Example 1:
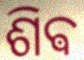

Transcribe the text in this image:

ଶିଵ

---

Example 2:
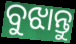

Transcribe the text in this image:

ବୁଝାନ୍ତୁ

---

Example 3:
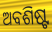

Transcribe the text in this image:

ଅବଶିଷ୍ଟ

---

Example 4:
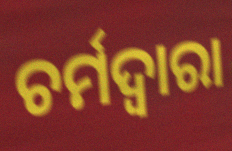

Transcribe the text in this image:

ଚର୍ମଦ୍ଵାରା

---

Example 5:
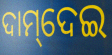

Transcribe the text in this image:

ଦାମ୍‌ଦେଇ